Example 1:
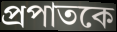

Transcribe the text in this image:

প্রপাতকে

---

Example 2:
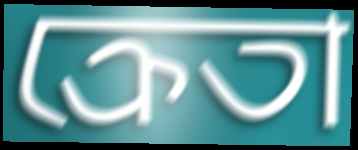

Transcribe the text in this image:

ক্রেতা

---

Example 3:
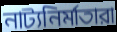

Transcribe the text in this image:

নাট্যনির্মাতারা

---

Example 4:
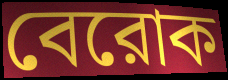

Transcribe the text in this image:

বেরোক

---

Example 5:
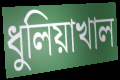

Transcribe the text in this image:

ধুলিয়াখাল